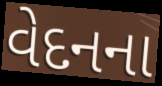
વેદનના